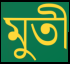
মুতী